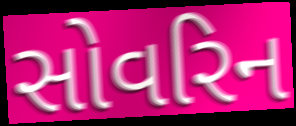
સોવરિન